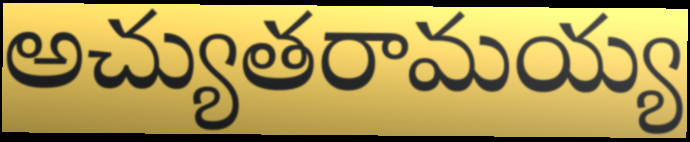
అచ్యుతరామయ్య